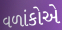
વળાંકોએ